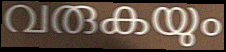
വരുകയും